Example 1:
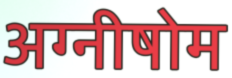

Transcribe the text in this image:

अग्नीषोम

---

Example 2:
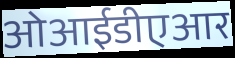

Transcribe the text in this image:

ओआईडीएआर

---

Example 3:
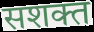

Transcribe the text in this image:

सशक्त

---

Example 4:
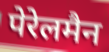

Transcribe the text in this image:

पेरेलमैन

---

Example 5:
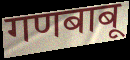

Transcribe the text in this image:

गणबाबू